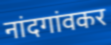
नांदगांवकर